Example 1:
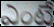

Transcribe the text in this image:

ఎంటే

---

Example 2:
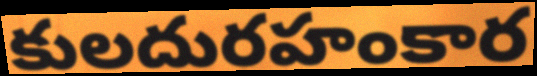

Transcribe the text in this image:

కులదురహంకార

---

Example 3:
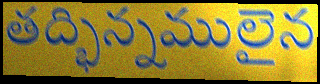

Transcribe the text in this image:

తద్భిన్నములైన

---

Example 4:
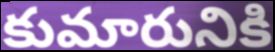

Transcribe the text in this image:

కుమారునికి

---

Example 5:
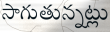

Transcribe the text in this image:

సాగుతున్నట్లు